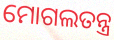
ମୋଗଲତନ୍ତ୍ର